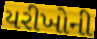
યરીખોની